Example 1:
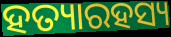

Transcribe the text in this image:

ହତ୍ୟାରହସ୍ୟ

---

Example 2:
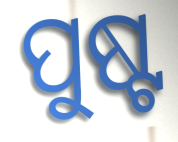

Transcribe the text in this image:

ପୁଷ୍ଟ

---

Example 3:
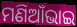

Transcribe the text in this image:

ମଣିଆଁଭାଇ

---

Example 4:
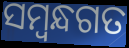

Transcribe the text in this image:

ସମ୍ବନ୍ଧଗତ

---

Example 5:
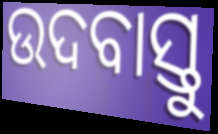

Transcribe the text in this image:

ଉଦବାସ୍ତୁ